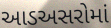
આડઅસરોમાં